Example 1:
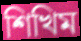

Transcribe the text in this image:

শিখিম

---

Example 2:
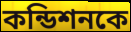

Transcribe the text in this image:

কন্ডিশনকে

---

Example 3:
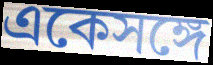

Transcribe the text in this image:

একেসঙ্গে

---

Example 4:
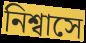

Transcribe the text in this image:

নিশ্বাসে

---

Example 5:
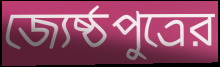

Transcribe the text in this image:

জ্যেষ্ঠপুত্রের